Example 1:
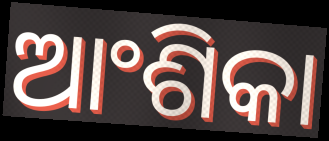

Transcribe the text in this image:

ଆଂଶିକା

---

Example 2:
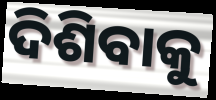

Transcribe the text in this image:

ଦିଶିବାକୁ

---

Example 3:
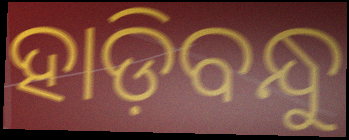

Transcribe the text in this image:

ହାଡ଼ିବନ୍ଧୁ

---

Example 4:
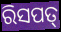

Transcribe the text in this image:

ରିସପତ୍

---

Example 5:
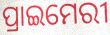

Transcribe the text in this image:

ପ୍ରାଇମେରୀ